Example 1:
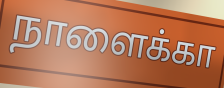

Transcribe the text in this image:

நாளைக்கா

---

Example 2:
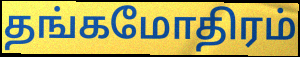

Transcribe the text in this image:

தங்கமோதிரம்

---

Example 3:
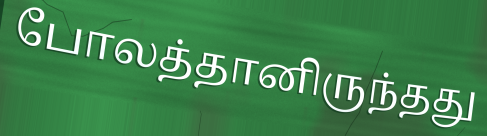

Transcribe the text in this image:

போலத்தானிருந்தது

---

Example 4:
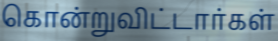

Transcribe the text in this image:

கொன்றுவிட்டார்கள்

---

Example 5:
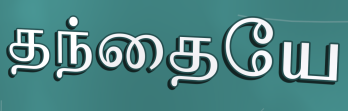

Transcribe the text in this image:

தந்தையே